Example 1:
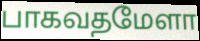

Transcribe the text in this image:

பாகவதமேளா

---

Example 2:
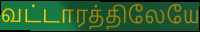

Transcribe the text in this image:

வட்டாரத்திலேயே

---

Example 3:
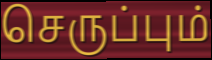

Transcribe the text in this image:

செருப்பும்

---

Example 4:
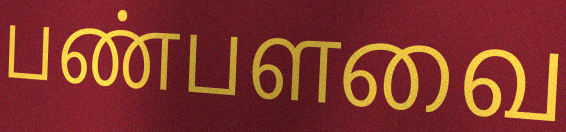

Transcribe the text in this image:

பண்பளவை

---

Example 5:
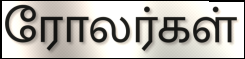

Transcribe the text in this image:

ரோலர்கள்